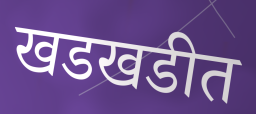
खडखडीत